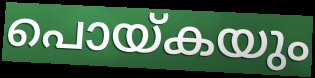
പൊയ്കയും